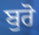
ਬੁਰੋ